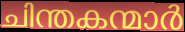
ചിന്തകന്മാർ